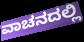
ವಾಚನದಲ್ಲಿ